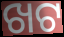
ଖଟ